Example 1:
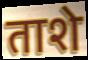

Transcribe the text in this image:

ताशे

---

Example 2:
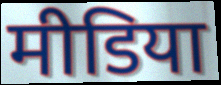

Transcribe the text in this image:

मीडिया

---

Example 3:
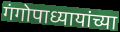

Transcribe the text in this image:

गंगोपाध्यायांच्या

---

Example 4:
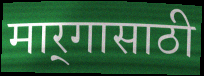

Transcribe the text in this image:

मार्गासाठी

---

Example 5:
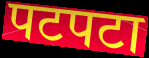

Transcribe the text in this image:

पटपटा